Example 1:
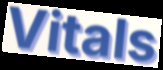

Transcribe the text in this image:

Vitals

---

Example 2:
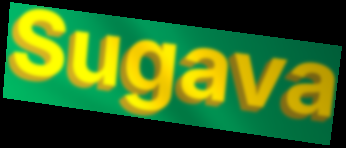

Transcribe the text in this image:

Sugava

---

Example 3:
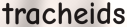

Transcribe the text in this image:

tracheids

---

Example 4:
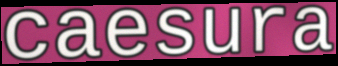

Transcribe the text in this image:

caesura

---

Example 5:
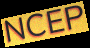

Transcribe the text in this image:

NCEP